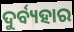
ଦୁର୍ବ୍ୟହାର